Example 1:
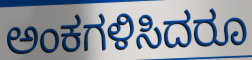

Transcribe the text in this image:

ಅಂಕಗಳಿಸಿದರೂ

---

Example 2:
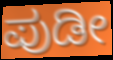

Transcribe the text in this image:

ಪುಡೀ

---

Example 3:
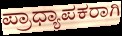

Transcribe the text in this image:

ಪ್ರಾಧ್ಯಾಪಕರಾಗಿ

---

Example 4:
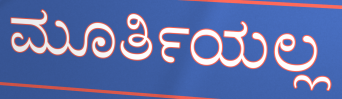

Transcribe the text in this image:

ಮೂರ್ತಿಯಲ್ಲ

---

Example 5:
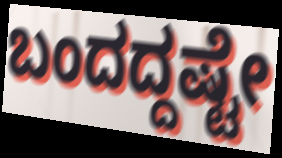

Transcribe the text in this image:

ಬಂದದ್ದಷ್ಟೇ